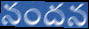
నందన